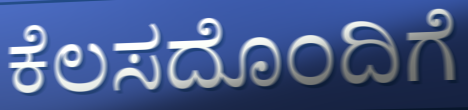
ಕೆಲಸದೊಂದಿಗೆ